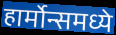
हार्मोन्समध्ये